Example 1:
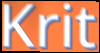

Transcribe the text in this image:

Krit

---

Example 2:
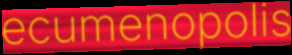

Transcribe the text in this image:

ecumenopolis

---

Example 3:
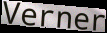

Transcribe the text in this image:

Verner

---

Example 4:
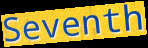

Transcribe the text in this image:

Seventh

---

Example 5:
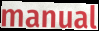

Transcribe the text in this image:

manual